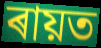
ৰায়ত